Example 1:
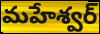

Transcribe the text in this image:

మహేశ్వర్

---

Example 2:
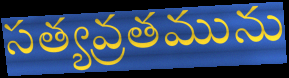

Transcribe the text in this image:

సత్యవ్రతమును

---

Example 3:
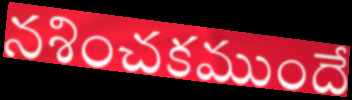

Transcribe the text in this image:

నశించకముందే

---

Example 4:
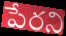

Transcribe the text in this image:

పేరని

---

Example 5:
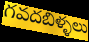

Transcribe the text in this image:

గవదబిళ్ళలు